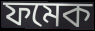
ফমেক